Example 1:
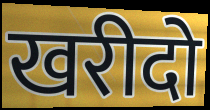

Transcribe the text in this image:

खरीदो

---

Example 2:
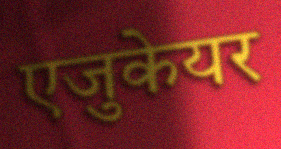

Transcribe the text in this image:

एजुकेयर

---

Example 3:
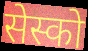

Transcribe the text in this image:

सेस्को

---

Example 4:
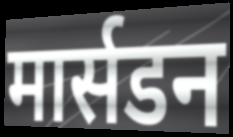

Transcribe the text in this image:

मार्सडन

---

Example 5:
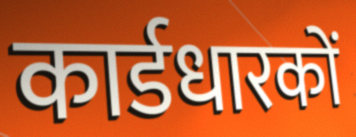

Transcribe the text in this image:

कार्डधारकों